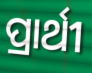
ପ୍ରାର୍ଥୀ